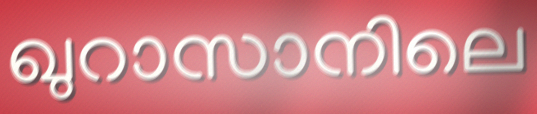
ഖുറാസാനിലെ